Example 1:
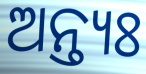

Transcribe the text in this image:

ଅନ୍ତ୍ୟଃ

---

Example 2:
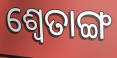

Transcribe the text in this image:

ଶ୍ୱେତାଙ୍ଗ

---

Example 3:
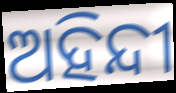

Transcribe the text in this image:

ଅହିନ୍ଦୀ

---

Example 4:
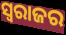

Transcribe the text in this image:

ସ୍ୱରାଜର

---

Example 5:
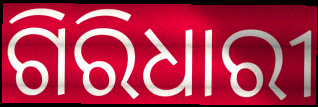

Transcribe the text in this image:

ଗିରିଧାରୀ